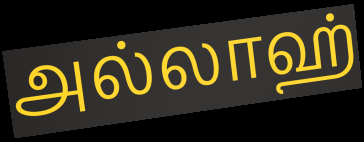
அல்லாஹ்